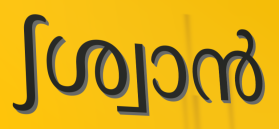
ഽശ്വാൻ